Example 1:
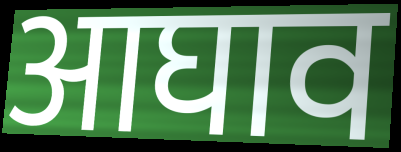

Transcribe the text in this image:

आघाव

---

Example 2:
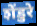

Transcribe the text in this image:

शेंडुरे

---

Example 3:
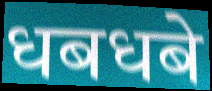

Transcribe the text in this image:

धबधबे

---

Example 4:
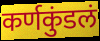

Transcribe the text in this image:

कर्णकुंडलं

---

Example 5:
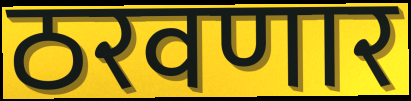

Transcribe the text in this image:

ठरवणार